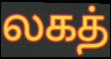
லகத்